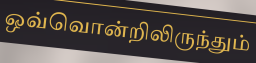
ஒவ்வொன்றிலிருந்தும்